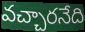
వచ్చారనేది